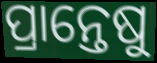
ପ୍ରାନ୍ତେଷୁ